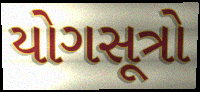
યોગસૂત્રો